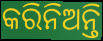
କରିନିଅନ୍ତି